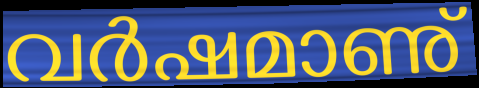
വർഷമാണു്